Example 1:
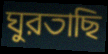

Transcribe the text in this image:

ঘুরতাছি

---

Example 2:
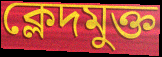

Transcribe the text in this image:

ক্লেদমুক্ত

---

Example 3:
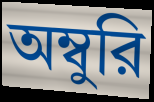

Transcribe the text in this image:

অম্বুরি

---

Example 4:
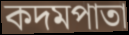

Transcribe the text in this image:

কদমপাতা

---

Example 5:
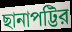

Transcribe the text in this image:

ছানাপট্টির